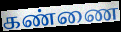
கண்ணை